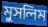
মুসলিম